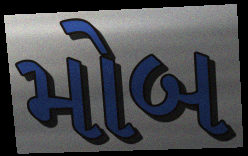
મોબ